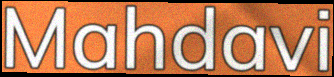
Mahdavi